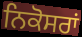
ਨਿਕੋਸਰਾਂ